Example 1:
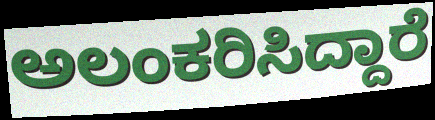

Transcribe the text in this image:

ಅಲಂಕರಿಸಿದ್ದಾರೆ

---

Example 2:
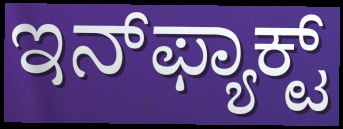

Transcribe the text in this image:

ಇನ್‌ಫ್ಯಾಕ್ಟ್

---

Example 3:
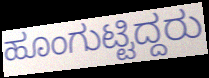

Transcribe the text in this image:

ಹೂಂಗುಟ್ಟಿದ್ದರು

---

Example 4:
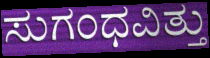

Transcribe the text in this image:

ಸುಗಂಧವಿತ್ತು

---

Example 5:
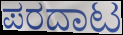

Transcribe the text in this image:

ಪರದಾಟ